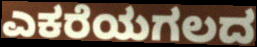
ಎಕರೆಯಗಲದ